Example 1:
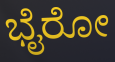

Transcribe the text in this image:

ಭೈರೋ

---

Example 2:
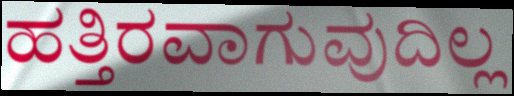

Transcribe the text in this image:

ಹತ್ತಿರವಾಗುವುದಿಲ್ಲ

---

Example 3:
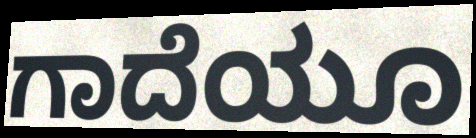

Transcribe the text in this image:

ಗಾದೆಯೂ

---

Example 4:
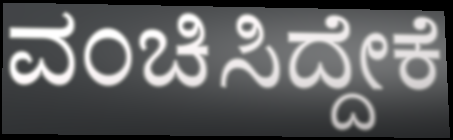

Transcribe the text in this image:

ವಂಚಿಸಿದ್ದೇಕೆ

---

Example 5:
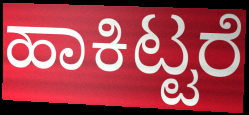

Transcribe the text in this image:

ಹಾಕಿಟ್ಟರೆ